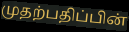
முதற்பதிப்பின்